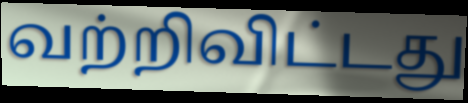
வற்றிவிட்டது